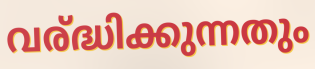
വര്ദ്ധിക്കുന്നതും